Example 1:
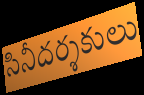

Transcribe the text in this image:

సినీదర్శకులు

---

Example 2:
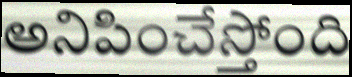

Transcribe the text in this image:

అనిపించేస్తోంది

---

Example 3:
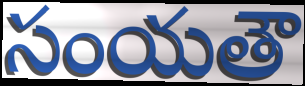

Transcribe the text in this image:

సంయతౌ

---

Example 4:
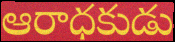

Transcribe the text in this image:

ఆరాధకుడు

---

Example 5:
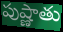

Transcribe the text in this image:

పుష్ణాతు